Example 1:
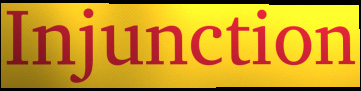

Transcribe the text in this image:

Injunction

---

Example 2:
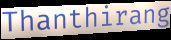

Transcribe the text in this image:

Thanthirang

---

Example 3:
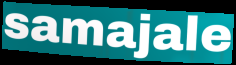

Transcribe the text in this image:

samajale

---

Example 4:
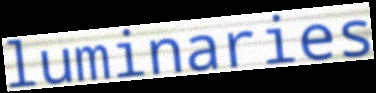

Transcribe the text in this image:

luminaries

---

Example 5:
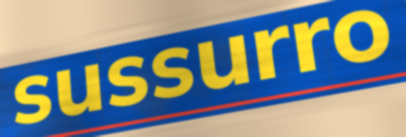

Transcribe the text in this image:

sussurro